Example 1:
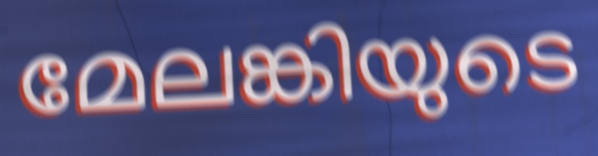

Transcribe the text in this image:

മേലങ്കിയുടെ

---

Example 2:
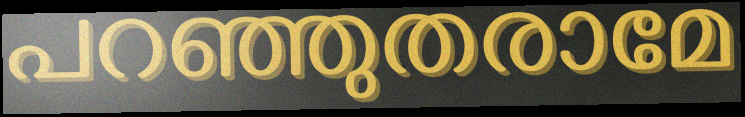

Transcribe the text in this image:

പറഞ്ഞുതരാമേ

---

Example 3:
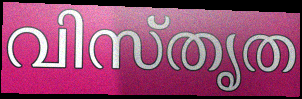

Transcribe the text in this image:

വിസ്തൃത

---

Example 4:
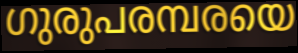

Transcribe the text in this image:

ഗുരുപരമ്പരയെ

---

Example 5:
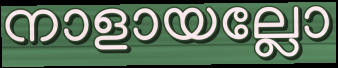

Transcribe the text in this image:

നാളായല്ലോ